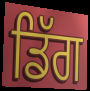
ਡਿੱਗ